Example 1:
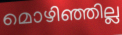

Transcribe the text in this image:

മൊഴിഞ്ഞില്ല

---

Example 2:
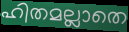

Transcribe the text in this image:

ഹിതമല്ലാതെ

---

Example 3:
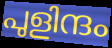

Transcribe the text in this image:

പുളിന്ദം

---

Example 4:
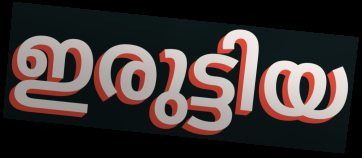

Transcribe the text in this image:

ഇരുട്ടിയ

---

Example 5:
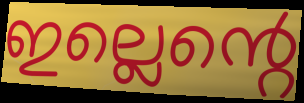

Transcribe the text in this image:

ഇല്ലെന്റെ